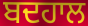
ਬਦਹਾਲ